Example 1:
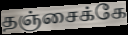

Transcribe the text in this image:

தஞ்சைக்கே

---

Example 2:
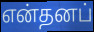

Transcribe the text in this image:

என்தனப்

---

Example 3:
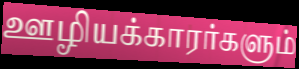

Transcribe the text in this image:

ஊழியக்காரர்களும்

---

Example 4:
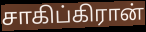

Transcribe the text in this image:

சாகிப்கிரான்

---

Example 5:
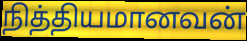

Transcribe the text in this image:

நித்தியமானவன்